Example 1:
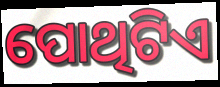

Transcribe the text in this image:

ପୋଥିଟିଏ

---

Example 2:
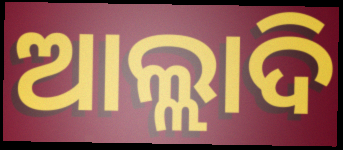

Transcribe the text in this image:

ଆଲ୍ଲାଦି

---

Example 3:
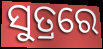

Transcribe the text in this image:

ସୁତ୍ରରେ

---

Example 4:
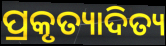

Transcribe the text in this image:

ପ୍ରକୃତ୍ୟାଦିତ୍ୟ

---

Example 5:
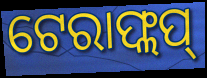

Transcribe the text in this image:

ଟେରାଫ୍ଲପ୍